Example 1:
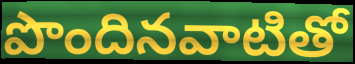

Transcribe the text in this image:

పొందినవాటితో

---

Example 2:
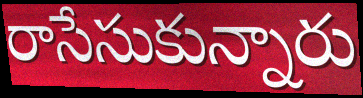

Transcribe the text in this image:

రాసేసుకున్నారు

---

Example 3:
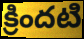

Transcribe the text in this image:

క్రిందటి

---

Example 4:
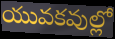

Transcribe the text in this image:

యువకవుల్లో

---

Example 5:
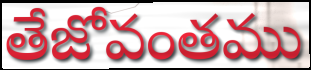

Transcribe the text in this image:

తేజోవంతము